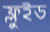
ফ্লুইড